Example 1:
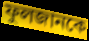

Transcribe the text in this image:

ফুলজানকে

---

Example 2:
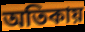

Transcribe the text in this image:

অতিকায়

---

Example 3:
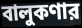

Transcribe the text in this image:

বালুকণার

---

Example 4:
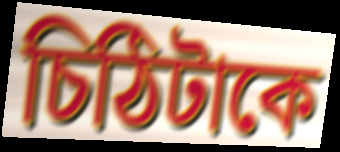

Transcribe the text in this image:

চিঠিটাকে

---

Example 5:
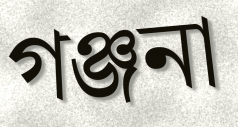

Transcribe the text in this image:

গঞ্জনা